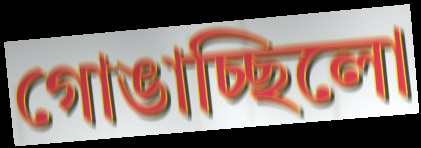
গোঙাচ্ছিলো